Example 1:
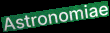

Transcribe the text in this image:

Astronomiae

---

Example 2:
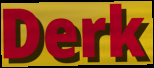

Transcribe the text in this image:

Derk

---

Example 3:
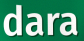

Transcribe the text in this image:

dara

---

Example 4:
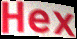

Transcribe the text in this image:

Hex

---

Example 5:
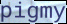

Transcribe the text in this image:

pigmy